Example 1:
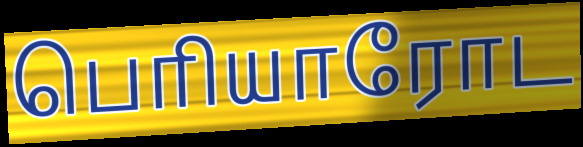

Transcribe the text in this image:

பெரியாரோட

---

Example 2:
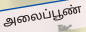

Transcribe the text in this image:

அலைப்பூண்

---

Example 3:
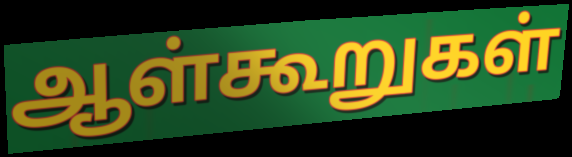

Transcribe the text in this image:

ஆள்கூறுகள்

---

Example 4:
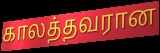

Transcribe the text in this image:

காலத்தவரான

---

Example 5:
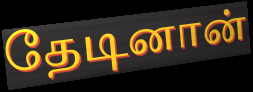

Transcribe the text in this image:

தேடினான்